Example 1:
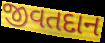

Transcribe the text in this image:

જીવતદાન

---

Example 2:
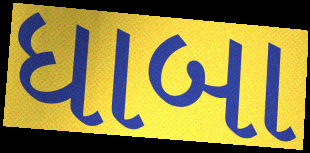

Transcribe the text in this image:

ધાબા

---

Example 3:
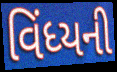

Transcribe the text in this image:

વિંધ્યની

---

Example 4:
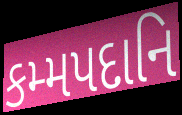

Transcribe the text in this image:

કમ્મપદાનિ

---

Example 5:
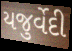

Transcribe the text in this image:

યજુર્વેદી